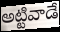
అట్టివాడే